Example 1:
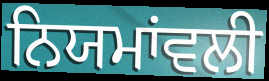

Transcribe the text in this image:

ਨਿਯਮਾਂਵਲੀ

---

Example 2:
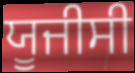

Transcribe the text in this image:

ਯੂਜੀਸੀ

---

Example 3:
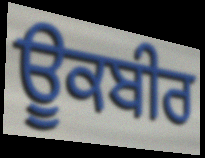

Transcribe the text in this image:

ਊਕਬੀਰ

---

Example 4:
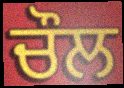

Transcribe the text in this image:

ਚੌਲ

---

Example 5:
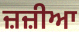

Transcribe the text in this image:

ਜ਼ਜ਼ੀਆ